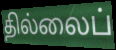
தில்லைப்